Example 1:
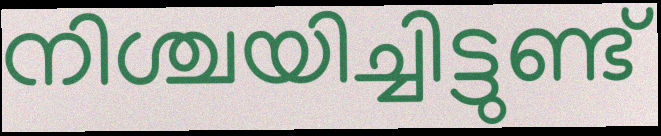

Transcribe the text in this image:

നിശ്ചയിച്ചിട്ടുണ്ട്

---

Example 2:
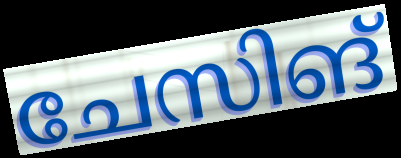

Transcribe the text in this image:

ചേസിങ്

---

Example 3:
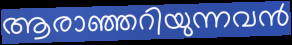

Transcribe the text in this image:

ആരാഞ്ഞറിയുന്നവൻ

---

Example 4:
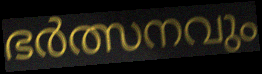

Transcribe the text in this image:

ഭർത്സനവും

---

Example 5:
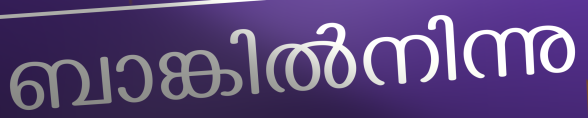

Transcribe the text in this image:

ബാങ്കിൽനിന്നു